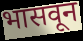
भासवून